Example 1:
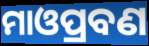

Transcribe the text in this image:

ମାଓପ୍ରବଣ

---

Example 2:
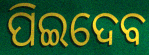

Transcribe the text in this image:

ପିଇଦେବ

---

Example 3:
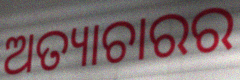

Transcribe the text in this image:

ଅତ୍ୟାଚାରର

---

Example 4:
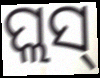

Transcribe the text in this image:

ପ୍ଲସ୍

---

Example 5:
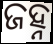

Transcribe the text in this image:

ଜହ୍ନ